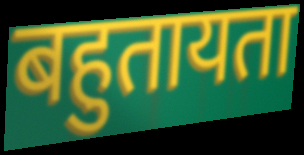
बहुतायता